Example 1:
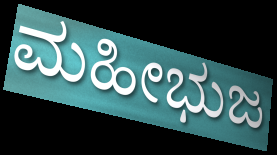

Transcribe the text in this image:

ಮಹೀಭುಜ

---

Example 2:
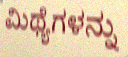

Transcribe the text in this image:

ಮಿಥ್ಯೆಗಳನ್ನು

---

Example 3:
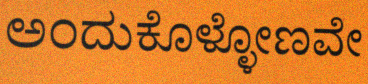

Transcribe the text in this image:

ಅಂದುಕೊಳ್ಳೋಣವೇ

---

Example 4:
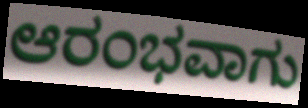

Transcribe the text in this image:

ಆರಂಭವಾಗು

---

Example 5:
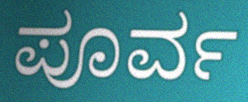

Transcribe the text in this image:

ಪೂರ್ವ